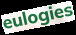
eulogies